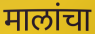
मालांचा